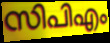
സിപിഎം